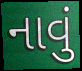
નાવું